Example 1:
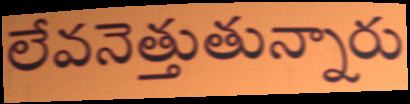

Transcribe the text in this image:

లేవనెత్తుతున్నారు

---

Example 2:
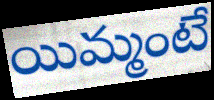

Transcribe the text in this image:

యిమ్మంటే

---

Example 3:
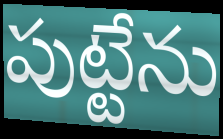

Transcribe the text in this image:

పుట్టేను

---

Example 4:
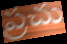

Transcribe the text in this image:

ప్రచు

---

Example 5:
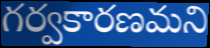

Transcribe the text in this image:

గర్వకారణమని